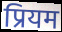
प्रियम